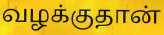
வழக்குதான்